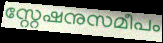
സ്റ്റേഷനുസമീപം